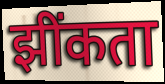
झींकता